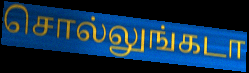
சொல்லுங்கடா